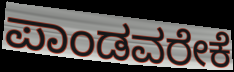
ಪಾಂಡವರೇಕೆ